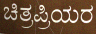
ಚಿತ್ರಪ್ರಿಯರ